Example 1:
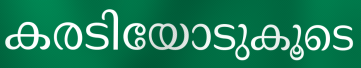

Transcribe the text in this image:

കരടിയോടുകൂടെ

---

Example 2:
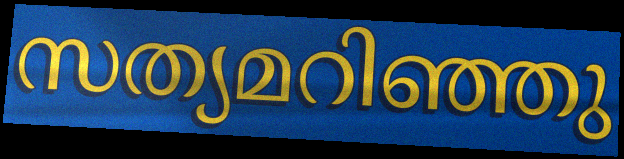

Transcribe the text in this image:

സത്യമറിഞ്ഞു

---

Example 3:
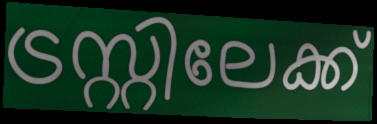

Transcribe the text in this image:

ട്രസ്റ്റിലേക്ക്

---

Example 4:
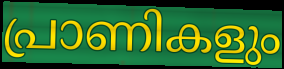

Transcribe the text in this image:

പ്രാണികളും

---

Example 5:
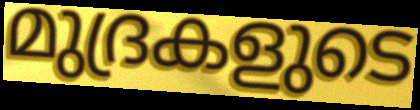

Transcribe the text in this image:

മുദ്രകളുടെ